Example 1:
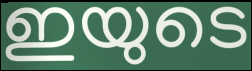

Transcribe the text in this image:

ഇയുടെ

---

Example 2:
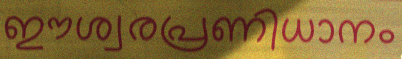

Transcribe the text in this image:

ഈശ്വരപ്രണിധാനം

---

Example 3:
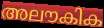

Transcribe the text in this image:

അലൗകിക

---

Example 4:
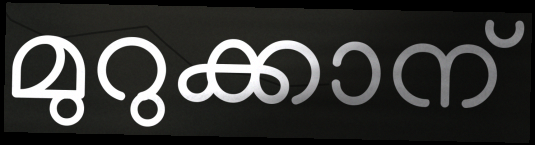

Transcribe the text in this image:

മുറുക്കാന്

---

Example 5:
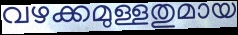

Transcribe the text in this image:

വഴക്കമുള്ളതുമായ